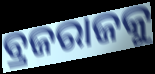
ବ୍ରଜରାଜକୁ